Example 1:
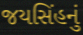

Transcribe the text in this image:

જયસિંહનું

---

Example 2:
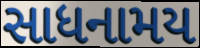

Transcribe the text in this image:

સાધનામય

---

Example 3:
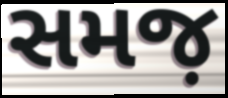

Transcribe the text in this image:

સમજ઼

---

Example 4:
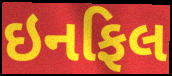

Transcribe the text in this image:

ઇનફિલ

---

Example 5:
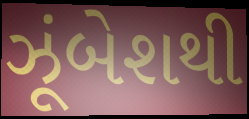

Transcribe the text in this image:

ઝૂંબેશથી